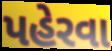
પહેરવા